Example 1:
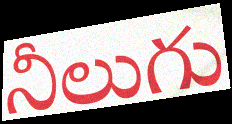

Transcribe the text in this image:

నీలుగు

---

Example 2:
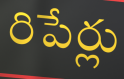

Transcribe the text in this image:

రిపేర్లు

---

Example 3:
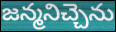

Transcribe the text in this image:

జన్మనిచ్చెను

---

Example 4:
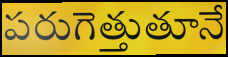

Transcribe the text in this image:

పరుగెత్తుతూనే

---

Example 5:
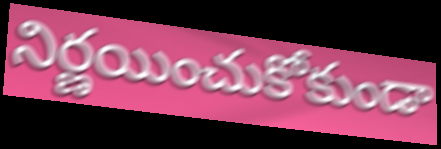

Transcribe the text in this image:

నిర్ణయించుకోకుండా